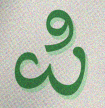
ಪಿ